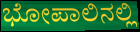
ಭೋಪಾಲಿನಲ್ಲಿ